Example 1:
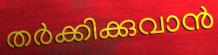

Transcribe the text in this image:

തർക്കിക്കുവാൻ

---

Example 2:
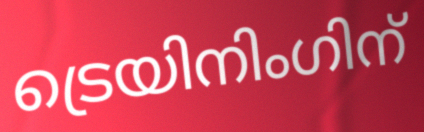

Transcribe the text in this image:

ട്രെയിനിംഗിന്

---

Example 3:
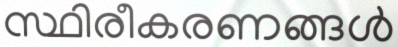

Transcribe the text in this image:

സ്ഥിരീകരണങ്ങൾ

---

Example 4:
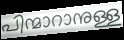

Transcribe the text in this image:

പിന്മാറാനുള്ള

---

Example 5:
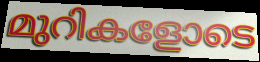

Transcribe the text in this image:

മുറികളോടെ